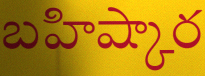
బహిష్కార